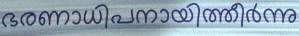
ഭരണാധിപനായിത്തീർന്നു